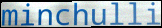
minchulli